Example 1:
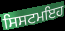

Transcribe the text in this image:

ਸਿਸਟਮਇਹ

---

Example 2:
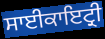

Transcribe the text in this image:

ਸਾਈਕਾਇਟ੍ਰੀ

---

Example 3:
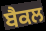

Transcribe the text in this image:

ਬੈਕਲ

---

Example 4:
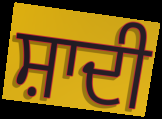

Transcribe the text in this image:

ਸ਼ਾਦੀ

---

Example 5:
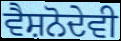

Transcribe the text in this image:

ਵੈਸ਼ਨੋਦੇਵੀ